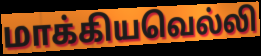
மாக்கியவெல்லி